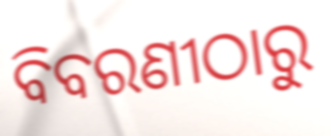
ବିବରଣୀଠାରୁ